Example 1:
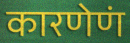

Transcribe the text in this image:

कारणेणं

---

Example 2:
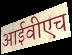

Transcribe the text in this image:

आईवीएच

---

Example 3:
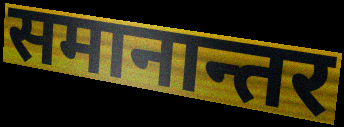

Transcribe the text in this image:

समानान्तर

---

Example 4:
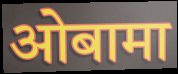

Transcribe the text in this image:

ओबामा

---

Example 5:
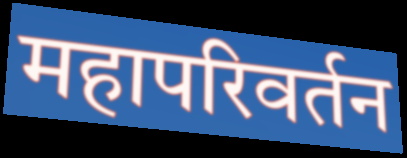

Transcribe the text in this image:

महापरिवर्तन